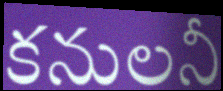
కనులనీ